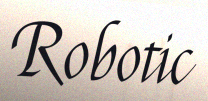
Robotic